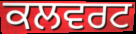
ਕਲਵਰਟ